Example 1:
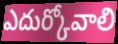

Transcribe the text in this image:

ఎదుర్కోవాలి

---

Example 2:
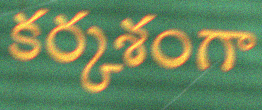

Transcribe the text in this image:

కర్కశంగా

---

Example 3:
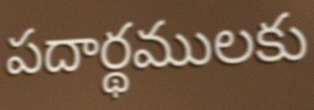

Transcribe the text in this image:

పదార్థములకు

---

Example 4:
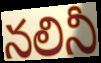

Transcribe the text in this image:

నలినీ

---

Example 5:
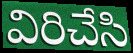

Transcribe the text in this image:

విరిచేసి